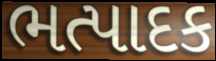
ભત્પાદક